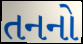
તનનો